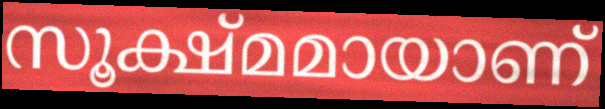
സൂക്ഷ്മമായാണ്